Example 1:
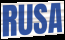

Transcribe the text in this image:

RUSA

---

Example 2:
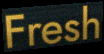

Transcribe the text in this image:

Fresh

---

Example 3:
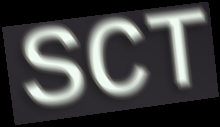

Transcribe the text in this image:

SCT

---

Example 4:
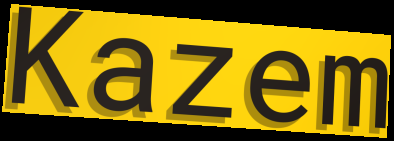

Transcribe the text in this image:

Kazem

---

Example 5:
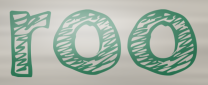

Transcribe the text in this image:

roo